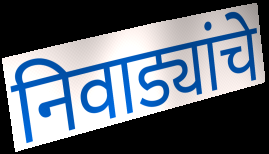
निवाड्यांचे